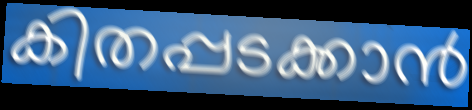
കിതപ്പടക്കാൻ